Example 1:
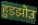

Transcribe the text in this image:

हुइझोउ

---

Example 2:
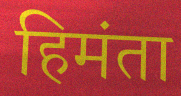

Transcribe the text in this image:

हिमंता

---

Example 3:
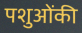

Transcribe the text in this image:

पशुओंकी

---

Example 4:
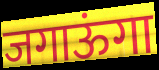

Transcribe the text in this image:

जगाऊंगा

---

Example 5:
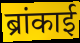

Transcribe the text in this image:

ब्रांकाई